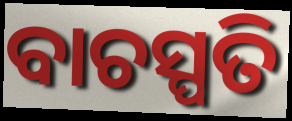
ବାଚସ୍ପତି